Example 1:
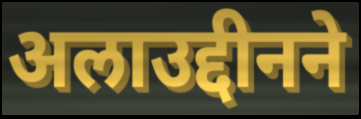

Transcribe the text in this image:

अलाउद्दीनने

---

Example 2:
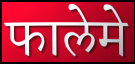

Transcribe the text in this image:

फालेमे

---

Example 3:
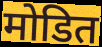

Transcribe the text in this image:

मोडित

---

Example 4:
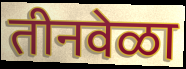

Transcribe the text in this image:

तीनवेळा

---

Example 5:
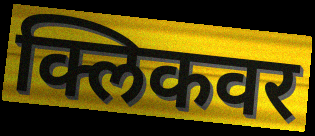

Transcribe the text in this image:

क्लिकवर